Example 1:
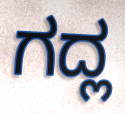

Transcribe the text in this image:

ಗದ್ಲ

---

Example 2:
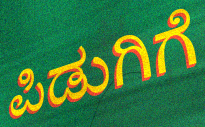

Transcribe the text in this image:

ಪಿಡುಗಿಗೆ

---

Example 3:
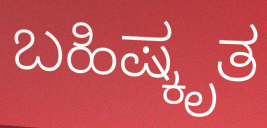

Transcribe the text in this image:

ಬಹಿಷ್ಕೃತ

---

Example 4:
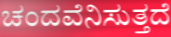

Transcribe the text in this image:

ಚಂದವೆನಿಸುತ್ತದೆ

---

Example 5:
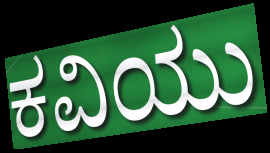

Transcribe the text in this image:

ಕವಿಯು